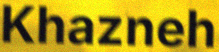
Khazneh